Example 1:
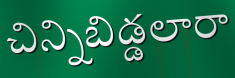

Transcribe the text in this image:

చిన్నిబిడ్డలారా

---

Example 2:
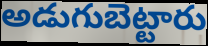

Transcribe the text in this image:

అడుగుబెట్టారు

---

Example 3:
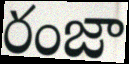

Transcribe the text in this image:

రంజా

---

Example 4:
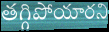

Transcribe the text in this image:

తగ్గిపోయారని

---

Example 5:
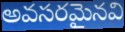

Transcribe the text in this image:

అవసరమైనవి